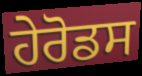
ਹੇਰੋਡਸ